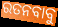
ରତନବାବୁ